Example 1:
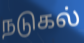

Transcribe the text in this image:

நடுகல்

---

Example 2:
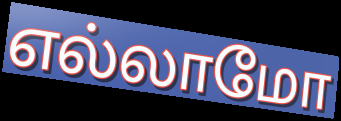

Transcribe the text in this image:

எல்லாமோ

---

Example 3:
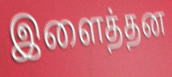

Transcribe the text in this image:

இளைத்தன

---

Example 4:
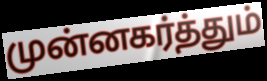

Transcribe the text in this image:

முன்னகர்த்தும்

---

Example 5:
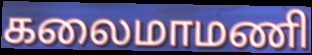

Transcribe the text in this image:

கலைமாமணி